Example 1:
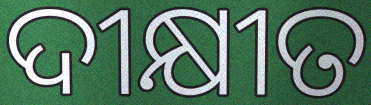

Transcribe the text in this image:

ଦୀକ୍ଷୀତ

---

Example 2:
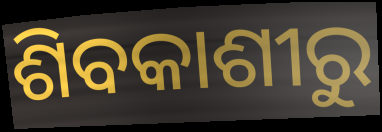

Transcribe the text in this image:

ଶିବକାଶୀରୁ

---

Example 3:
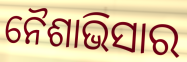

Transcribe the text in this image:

ନୈଶାଭିସାର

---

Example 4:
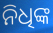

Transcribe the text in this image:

ନିଧିଙ୍କ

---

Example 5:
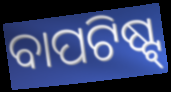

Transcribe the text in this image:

ବାପଟିଷ୍ଟ୍